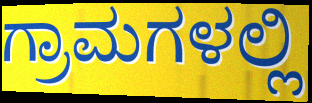
ಗ್ರಾಮಗಳಲ್ಲಿ